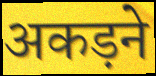
अकड़ने